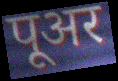
पूअर